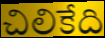
చిలికేది